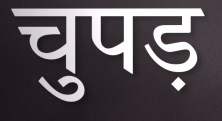
चुपड़